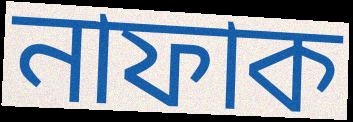
নাফাক